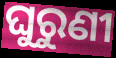
ଘୁରୁଣୀ